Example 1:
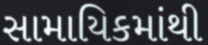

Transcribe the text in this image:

સામાયિકમાંથી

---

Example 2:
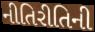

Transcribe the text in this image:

નીતિરીતિની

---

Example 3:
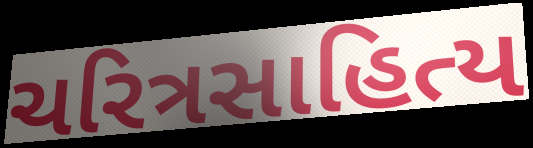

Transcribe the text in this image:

ચરિત્રસાહિત્ય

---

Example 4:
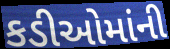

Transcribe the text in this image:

કડીઓમાંની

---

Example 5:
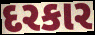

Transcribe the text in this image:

દરકાર